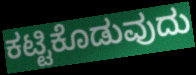
ಕಟ್ಟಿಕೊಡುವುದು